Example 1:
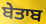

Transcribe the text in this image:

ਬੇਤਾਬ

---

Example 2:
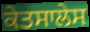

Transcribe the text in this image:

ਕੇਤਸਾਲੇਸ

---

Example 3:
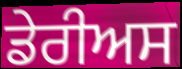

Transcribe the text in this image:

ਡੇਰੀਅਸ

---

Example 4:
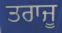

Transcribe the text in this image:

ਤਰਾਜੂ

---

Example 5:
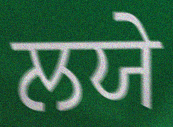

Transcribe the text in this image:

ਲਯੇ